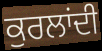
ਕੁਰਲਾਂਦੀ